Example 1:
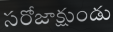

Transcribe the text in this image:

సరోజాక్షుండు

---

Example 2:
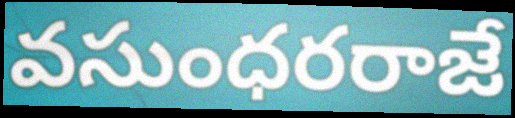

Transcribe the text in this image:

వసుంధరరాజే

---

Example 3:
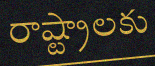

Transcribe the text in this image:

రాష్ట్రాలకు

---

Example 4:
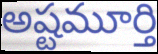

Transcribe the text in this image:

అష్టమూర్తి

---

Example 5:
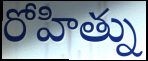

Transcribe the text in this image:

రోహిత్ను